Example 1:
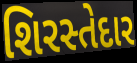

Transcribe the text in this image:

શિરસ્તેદાર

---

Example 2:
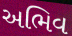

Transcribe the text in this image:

અભિવ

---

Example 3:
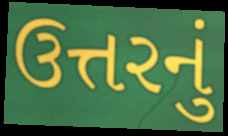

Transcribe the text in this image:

ઉત્તરનું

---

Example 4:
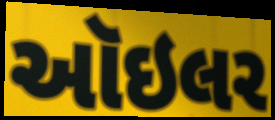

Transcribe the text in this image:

ઑઇલર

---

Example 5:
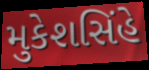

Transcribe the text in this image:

મુકેશસિંહે